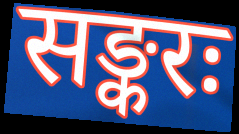
सङ्करः